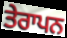
ਤੇਰਾਪਨ